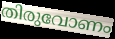
തിരുവോണം